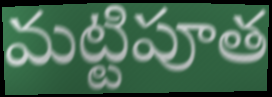
మట్టిపూత